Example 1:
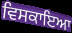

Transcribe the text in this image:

ਵਿਸਕਾਇਆ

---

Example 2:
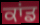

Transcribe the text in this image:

ਕਾਂਡ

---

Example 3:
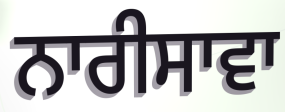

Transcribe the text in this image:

ਨਾਰੀਸਾਵਾ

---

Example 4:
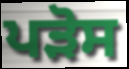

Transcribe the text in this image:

ਪੜੋਸ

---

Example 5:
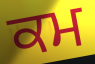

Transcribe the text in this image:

ਕਮ